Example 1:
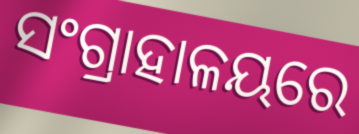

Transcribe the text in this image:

ସଂଗ୍ରାହାଳୟରେ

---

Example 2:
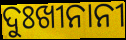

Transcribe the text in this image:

ଦୁଃଖୀନାନୀ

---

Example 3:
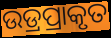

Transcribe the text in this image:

ଉଡ୍ରପ୍ରାକୃତ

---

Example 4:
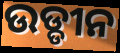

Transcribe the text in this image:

ଉଡ୍ଡୀନ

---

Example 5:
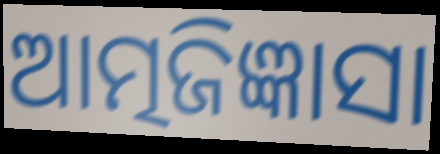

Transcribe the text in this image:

ଆତ୍ମଜିଜ୍ଞାସା